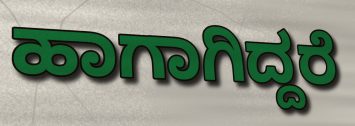
ಹಾಗಾಗಿದ್ದರೆ